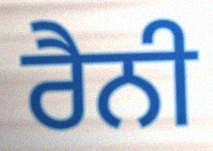
ਰੈਨੀ